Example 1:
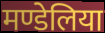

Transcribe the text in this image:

मण्डेलिया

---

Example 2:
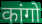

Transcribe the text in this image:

कांगो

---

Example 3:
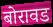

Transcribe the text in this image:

बोरावड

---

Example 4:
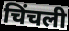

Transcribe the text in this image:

चिंचली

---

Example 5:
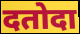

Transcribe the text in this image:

दतोदा